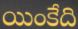
యింకేది